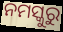
ନମସ୍କୁରୁ